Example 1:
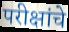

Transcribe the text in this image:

परीक्षांचे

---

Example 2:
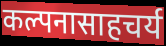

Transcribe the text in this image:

कल्पनासाहचर्य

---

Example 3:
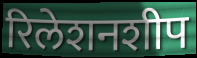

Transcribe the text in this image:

रिलेशनशीप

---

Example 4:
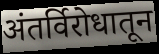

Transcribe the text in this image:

अंतर्विरोधातून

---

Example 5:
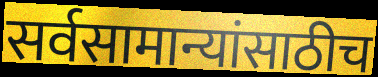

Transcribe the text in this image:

सर्वसामान्यांसाठीच